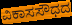
ವಿಕಾಸಸೌಧದ